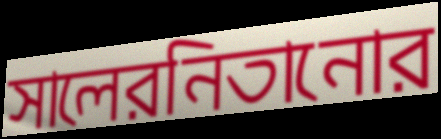
সালেরনিতানোর